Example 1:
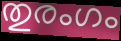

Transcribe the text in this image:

തുരംഗം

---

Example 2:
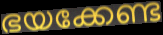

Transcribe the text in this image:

ഭയക്കേണ്ട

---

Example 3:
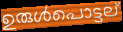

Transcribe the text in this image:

ഉരുൾപൊട്ടല്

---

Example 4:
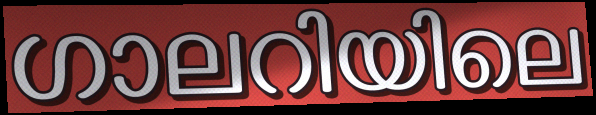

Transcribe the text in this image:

ഗാലറിയിലെ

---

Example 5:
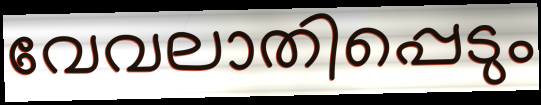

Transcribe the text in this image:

വേവലാതിപ്പെടും